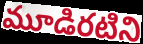
మూడిరటిని